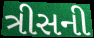
ત્રીસની